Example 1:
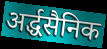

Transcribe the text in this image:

अर्द्धसैनिक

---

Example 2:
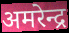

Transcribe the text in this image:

अमरेन्द्र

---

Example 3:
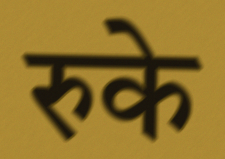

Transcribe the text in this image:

रुके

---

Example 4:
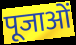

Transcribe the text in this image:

पूजाओं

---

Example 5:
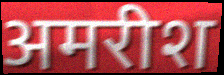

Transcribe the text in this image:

अमरीश